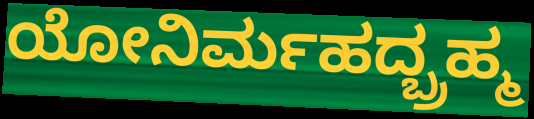
ಯೋನಿರ್ಮಹದ್ಬ್ರಹ್ಮ